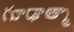
గూఢాత్మా